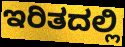
ಇರಿತದಲ್ಲಿ